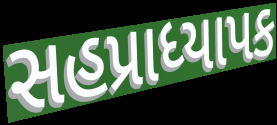
સહપ્રાધ્યાપક